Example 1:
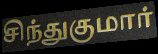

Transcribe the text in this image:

சிந்துகுமார்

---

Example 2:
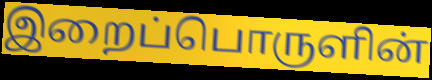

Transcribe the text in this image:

இறைப்பொருளின்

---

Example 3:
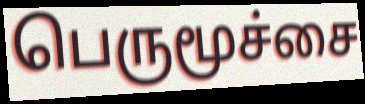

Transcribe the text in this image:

பெருமூச்சை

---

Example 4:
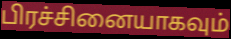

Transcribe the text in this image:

பிரச்சினையாகவும்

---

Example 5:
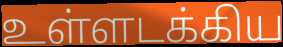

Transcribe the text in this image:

உள்ளடக்கிய